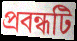
প্ৰবন্ধটি